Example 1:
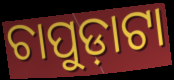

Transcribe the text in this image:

ଚାପୁଡ଼ାଟା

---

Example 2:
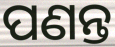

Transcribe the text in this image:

ପଣନ୍ତ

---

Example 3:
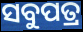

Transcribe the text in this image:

ସବୁପତ୍ର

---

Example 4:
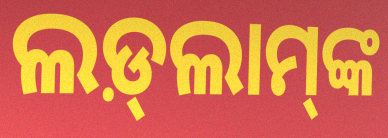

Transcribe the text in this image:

ଲଡ଼୍‍ଲାମ୍‍ଙ୍କ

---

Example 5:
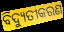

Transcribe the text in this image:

ବିଦ୍ୟୁତୀକରଣ